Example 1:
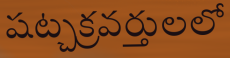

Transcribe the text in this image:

షట్చక్రవర్తులలో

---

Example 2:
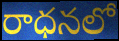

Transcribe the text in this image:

రాధనలో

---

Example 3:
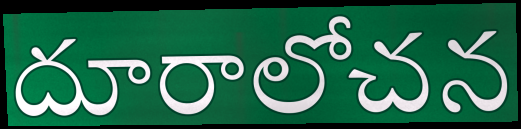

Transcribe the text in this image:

దూరాలోచన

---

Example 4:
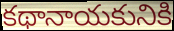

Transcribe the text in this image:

కథానాయకునికి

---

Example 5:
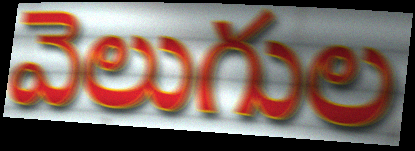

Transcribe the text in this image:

వెలుగుల